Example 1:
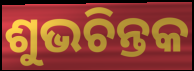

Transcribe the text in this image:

ଶୁଭଚିନ୍ତକ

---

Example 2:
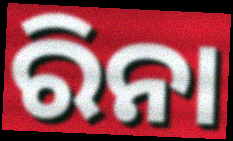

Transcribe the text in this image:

ରିନା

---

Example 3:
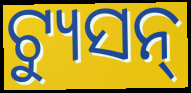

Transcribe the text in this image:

ଟ୍ୟୁସନ୍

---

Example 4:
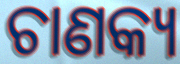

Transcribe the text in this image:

ଚାଣକ୍ଯ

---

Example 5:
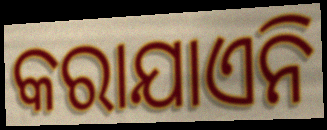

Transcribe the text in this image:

କରାଯାଏନି